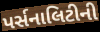
પર્સનાલિટીની